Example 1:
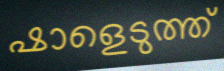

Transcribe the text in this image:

ഷാളെടുത്ത്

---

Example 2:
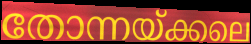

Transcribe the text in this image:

തോന്നയ്ക്കലെ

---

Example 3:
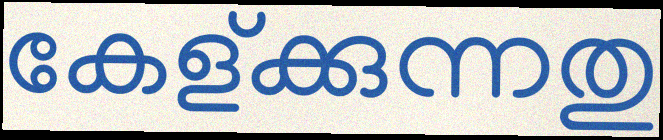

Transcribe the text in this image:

കേള്ക്കുന്നതു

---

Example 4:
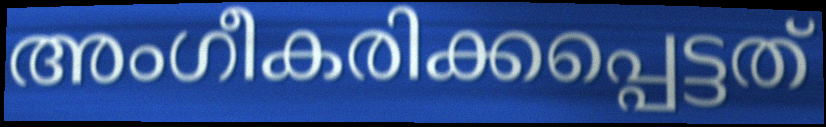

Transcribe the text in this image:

അംഗീകരിക്കപ്പെട്ടത്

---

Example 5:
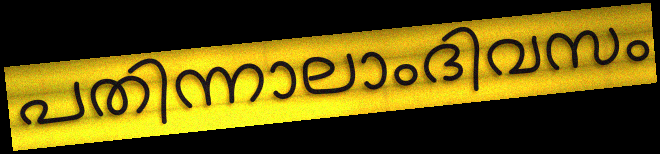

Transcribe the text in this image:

പതിന്നാലാംദിവസം